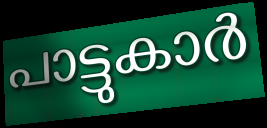
പാട്ടുകാർ